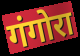
गंगोरा